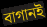
বাগানই